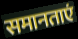
समानताएं